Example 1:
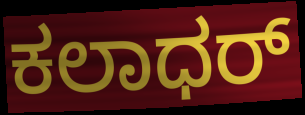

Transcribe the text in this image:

ಕಲಾಧರ್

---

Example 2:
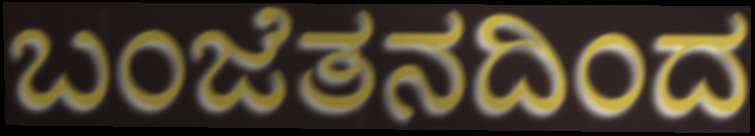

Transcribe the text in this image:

ಬಂಜೆತನದಿಂದ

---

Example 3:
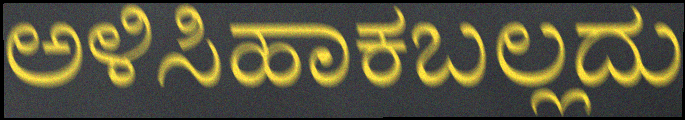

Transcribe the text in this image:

ಅಳಿಸಿಹಾಕಬಲ್ಲದು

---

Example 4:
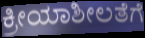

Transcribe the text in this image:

ಕ್ರೀಯಾಶೀಲತೆಗೆ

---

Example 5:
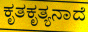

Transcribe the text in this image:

ಕೃತಕೃತ್ಯನಾದೆ